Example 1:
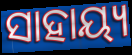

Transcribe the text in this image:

ସାହାୟ୍ୟ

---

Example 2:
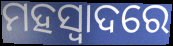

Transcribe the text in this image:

ମହସ୍ୱାଦରେ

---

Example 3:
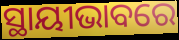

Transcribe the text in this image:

ସ୍ଥାୟୀଭାବରେ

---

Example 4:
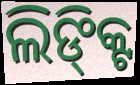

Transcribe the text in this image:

ଲିଙ୍କ୍ଟି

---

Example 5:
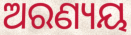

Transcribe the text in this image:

ଅରଣ୍ୟୟ